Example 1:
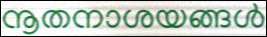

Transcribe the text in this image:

നൂതനാശയങ്ങൾ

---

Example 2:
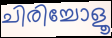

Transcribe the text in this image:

ചിരിച്ചോളൂ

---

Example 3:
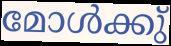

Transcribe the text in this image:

മോൾക്കു്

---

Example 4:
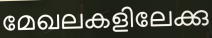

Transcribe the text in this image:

മേഖലകളിലേക്കു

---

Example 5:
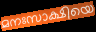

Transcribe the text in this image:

മനഃസാക്ഷിയെ